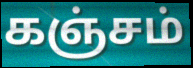
கஞ்சம்